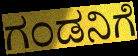
ಗಂಡನಿಗೆ